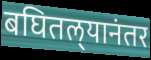
बघितल्यानंतर